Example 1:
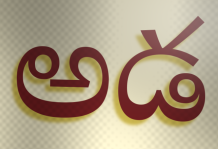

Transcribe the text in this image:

అడ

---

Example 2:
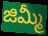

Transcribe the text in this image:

జిమ్మీ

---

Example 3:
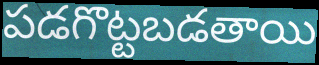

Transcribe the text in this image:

పడగొట్టబడతాయి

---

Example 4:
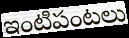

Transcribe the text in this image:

ఇంటిపంటలు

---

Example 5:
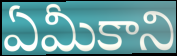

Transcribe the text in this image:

ఏమీకాని